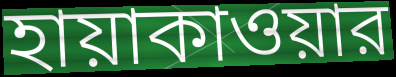
হায়াকাওয়ার